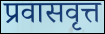
प्रवासवृत्त